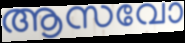
ആസവോ